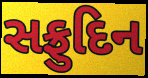
સફ્રુદિન